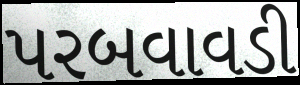
પરબવાવડી